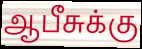
ஆபீசுக்கு